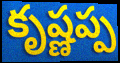
కృష్ణప్ప